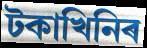
টকাখিনিৰ